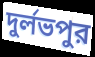
দুর্লভপুর